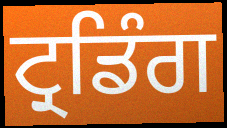
ਟ੍ਰਡਿੰਗ